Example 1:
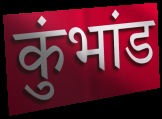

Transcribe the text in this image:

कुंभांड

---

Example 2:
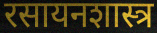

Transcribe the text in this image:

रसायनशास्त्र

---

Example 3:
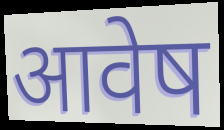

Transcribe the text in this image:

आवेष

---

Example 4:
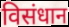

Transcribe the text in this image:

विसंधान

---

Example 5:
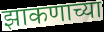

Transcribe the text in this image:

झाकणाच्या